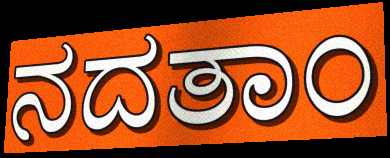
ನದತಾಂ